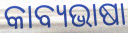
କାବ୍ୟଭାଷା